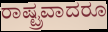
ರಾಷ್ಟ್ರವಾದರೂ